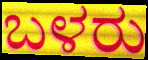
ಬಳರು